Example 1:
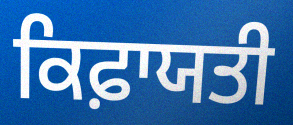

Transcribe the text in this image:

ਕਿਫ਼ਾਯਤੀ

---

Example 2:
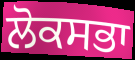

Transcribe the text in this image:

ਲੋਕਸਭਾ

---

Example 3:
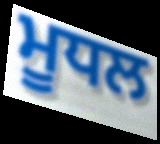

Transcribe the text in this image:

ਮੂਧਲ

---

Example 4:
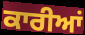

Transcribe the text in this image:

ਕਾਰੀਆਂ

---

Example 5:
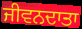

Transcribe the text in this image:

ਜੀਵਨਦਾਤਾ